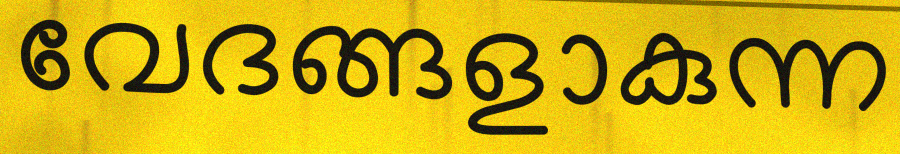
വേദങ്ങളാകുന്ന